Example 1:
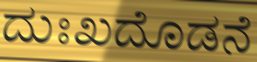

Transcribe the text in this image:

ದುಃಖದೊಡನೆ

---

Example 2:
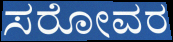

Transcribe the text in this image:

ಸರೋವರ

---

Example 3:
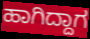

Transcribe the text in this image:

ಹಾಗಿದ್ದಾಗ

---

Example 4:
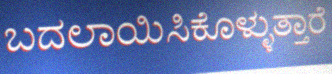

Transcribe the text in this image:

ಬದಲಾಯಿಸಿಕೊಳ್ಳುತ್ತಾರೆ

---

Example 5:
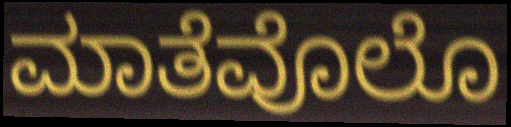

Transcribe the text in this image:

ಮಾತೆವೊಲೊ